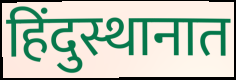
हिंदुस्थानात